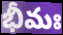
భీమః